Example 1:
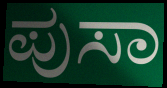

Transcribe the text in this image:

ಪುಸಾ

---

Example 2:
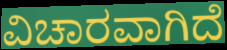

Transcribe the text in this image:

ವಿಚಾರವಾಗಿದೆ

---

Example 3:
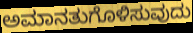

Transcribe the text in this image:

ಅಮಾನತುಗೊಳಿಸುವುದು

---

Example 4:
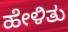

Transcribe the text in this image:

ಹೇಳಿತು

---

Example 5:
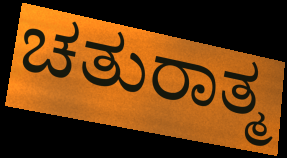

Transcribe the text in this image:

ಚತುರಾತ್ಮ